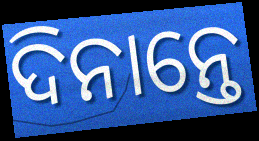
ଦିନାନ୍ତେ